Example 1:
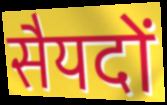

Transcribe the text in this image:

सैयदों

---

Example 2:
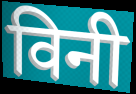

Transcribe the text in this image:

विनी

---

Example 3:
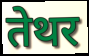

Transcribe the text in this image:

तेथर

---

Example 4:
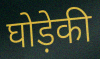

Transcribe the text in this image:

घोड़ेकी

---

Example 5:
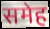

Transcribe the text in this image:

समेह